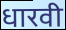
धारवी